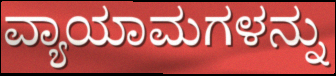
ವ್ಯಾಯಾಮಗಳನ್ನು